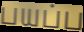
பயப்ப